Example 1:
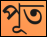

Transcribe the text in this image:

পূত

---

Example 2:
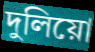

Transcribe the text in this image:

দুলিয়ো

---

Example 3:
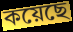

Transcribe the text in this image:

কয়েছে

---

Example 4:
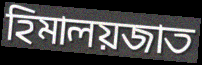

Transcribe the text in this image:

হিমালয়জাত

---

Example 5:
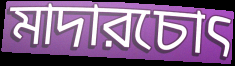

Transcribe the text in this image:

মাদারচোৎ